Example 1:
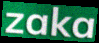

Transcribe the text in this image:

zaka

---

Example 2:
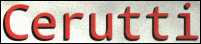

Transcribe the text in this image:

Cerutti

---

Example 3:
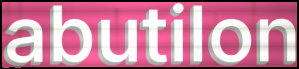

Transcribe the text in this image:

abutilon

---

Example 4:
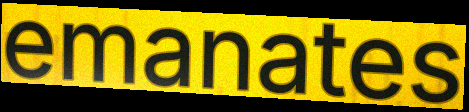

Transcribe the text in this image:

emanates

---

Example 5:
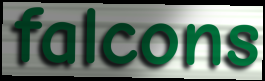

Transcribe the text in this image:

falcons